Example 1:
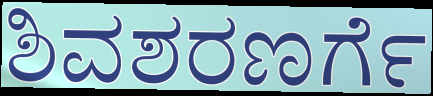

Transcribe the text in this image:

ಶಿವಶರಣರ್ಗೆ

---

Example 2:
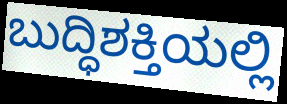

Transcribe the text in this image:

ಬುದ್ಧಿಶಕ್ತಿಯಲ್ಲಿ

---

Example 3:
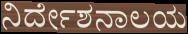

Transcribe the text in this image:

ನಿರ್ದೇಶನಾಲಯ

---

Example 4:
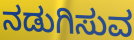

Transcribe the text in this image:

ನಡುಗಿಸುವ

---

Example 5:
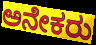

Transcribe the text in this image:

ಅನೇಕರು